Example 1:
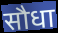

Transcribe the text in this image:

सौधा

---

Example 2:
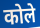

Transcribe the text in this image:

कोले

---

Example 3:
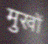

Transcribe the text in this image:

मुखों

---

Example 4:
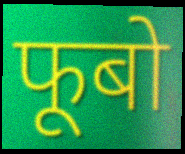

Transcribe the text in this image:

फूबो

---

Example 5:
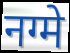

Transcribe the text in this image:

नग्मे